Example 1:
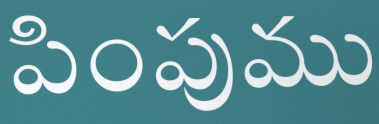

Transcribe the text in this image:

పింపుము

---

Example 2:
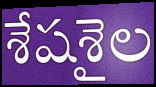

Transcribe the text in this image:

శేషశైల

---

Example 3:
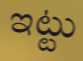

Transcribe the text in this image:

ఇట్టు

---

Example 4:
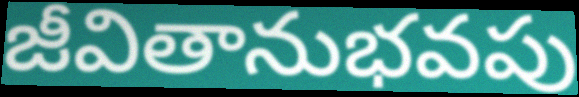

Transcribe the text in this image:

జీవితానుభవపు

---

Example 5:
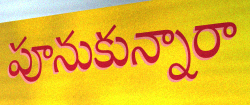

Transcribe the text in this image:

పూనుకున్నారా